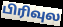
பிரிவுல